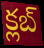
క్లబ్